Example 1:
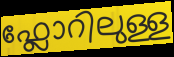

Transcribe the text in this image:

ഫ്ലോറിലുള്ള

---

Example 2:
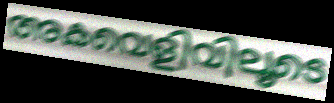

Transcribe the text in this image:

അകവെളിവിലൂടെ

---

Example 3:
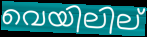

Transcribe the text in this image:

വെയിലില്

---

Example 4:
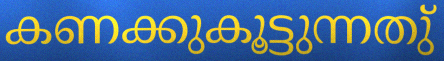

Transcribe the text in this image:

കണക്കുകൂട്ടുന്നതു്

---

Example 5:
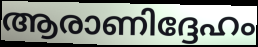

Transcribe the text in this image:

ആരാണിദ്ദേഹം